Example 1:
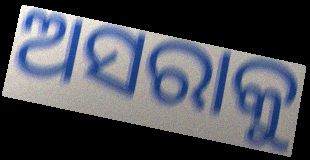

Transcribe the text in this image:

ଅସରାକୁ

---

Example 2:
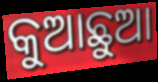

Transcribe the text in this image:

କୁଆଛୁଆ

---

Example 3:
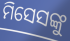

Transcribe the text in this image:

ମିସେସଙ୍କୁ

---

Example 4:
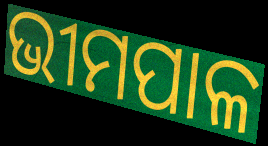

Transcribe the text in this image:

ଭୀମପାଳ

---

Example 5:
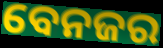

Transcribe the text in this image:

ବେନଜର